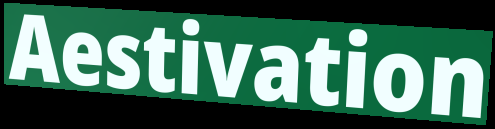
Aestivation